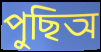
পুছিঅ